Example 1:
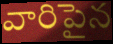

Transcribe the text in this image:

వారిపైన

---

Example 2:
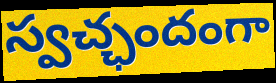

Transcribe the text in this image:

స్వచ్ఛందంగా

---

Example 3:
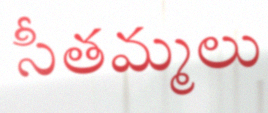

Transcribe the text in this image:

సీతమ్మలు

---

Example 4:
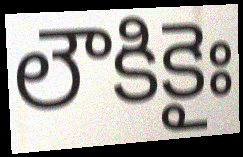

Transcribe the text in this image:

లౌకికైః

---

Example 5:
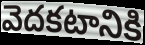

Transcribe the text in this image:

వెదకటానికి